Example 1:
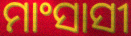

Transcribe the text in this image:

ମାଂସାସୀ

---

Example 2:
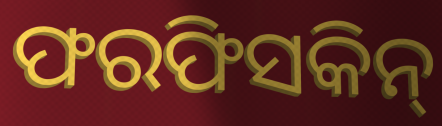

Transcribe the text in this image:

ଫରଫିସକିନ୍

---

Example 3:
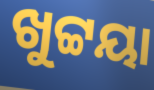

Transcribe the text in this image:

ଖୁଟ୍ଟୟା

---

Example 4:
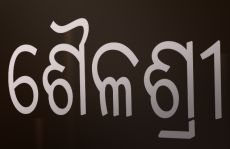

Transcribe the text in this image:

ଶୈଳଶ୍ରୀ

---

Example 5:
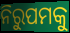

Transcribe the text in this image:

ନିରୁପମକୁ